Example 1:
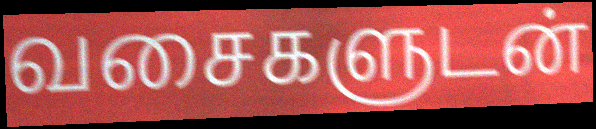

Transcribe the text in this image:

வசைகளுடன்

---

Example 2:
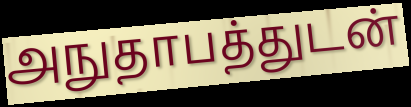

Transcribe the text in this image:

அநுதாபத்துடன்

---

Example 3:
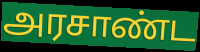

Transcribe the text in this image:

அரசாண்ட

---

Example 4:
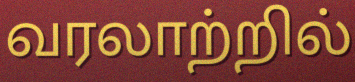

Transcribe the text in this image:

வரலாற்றில்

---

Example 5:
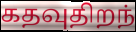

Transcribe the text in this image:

கதவுதிறந்